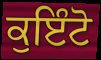
ਕੁਇੰਟੋ